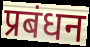
प्रबंधन